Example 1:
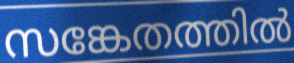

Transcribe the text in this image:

സങ്കേതത്തിൽ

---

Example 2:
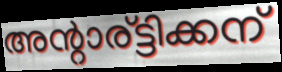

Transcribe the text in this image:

അന്റാര്ട്ടിക്കന്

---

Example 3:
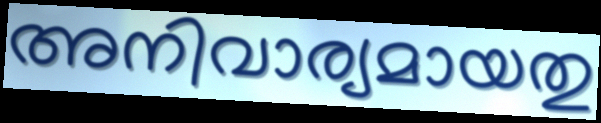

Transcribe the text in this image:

അനിവാര്യമായതു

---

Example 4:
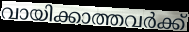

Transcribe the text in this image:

വായിക്കാത്തവർക്ക്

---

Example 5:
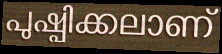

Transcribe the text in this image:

പുഷ്പിക്കലാണ്